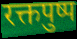
रक्तपुष्प